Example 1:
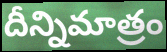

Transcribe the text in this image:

దీన్నిమాత్రం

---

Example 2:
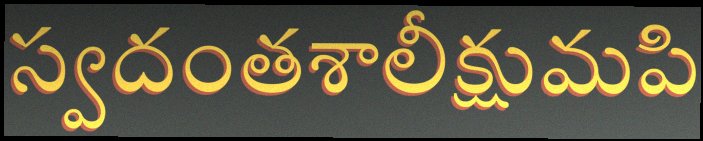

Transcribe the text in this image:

స్వదంతశాలీక్షుమపి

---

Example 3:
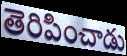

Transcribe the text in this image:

తెరిపించాడు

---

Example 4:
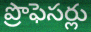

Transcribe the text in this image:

ప్రొఫెసర్లు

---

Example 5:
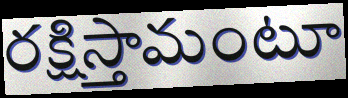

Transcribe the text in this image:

రక్షిస్తామంటూ